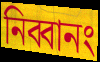
নিব্বানং